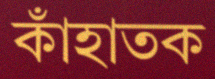
কাঁহাতক